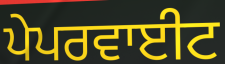
ਪੇਪਰਵਾਈਟ